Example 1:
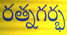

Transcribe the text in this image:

రత్నగర్భ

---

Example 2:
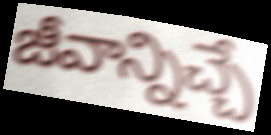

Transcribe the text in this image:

జీవాన్నిచ్చే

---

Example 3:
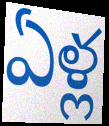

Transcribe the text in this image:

ఏళ్ల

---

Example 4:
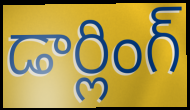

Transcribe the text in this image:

డార్లింగ్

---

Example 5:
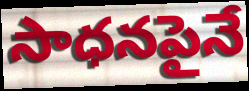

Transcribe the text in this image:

సాధనపైనే